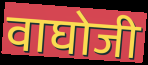
वाघोजी